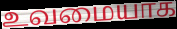
உவமையாக